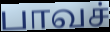
பாவச்